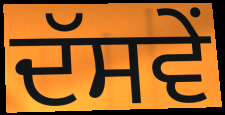
ਦੱਸਵੇਂ